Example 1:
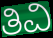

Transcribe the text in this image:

ತಿವಿ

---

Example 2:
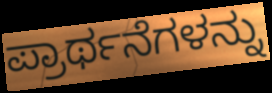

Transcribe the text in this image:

ಪ್ರಾರ್ಥನೆಗಳನ್ನು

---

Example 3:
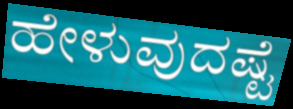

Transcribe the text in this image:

ಹೇಳುವುದಷ್ಟೆ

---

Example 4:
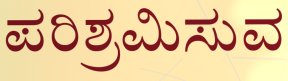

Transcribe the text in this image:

ಪರಿಶ್ರಮಿಸುವ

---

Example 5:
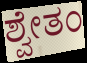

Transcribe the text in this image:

ಶ್ವೇತಂ